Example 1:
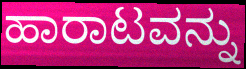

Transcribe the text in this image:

ಹಾರಾಟವನ್ನು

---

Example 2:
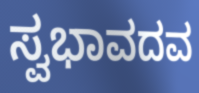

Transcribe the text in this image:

ಸ್ವಭಾವದವ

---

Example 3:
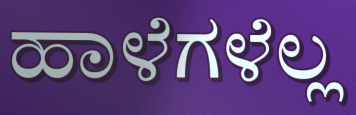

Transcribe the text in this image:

ಹಾಳೆಗಳೆಲ್ಲ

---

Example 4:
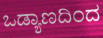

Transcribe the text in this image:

ಒಡ್ಯಾಣದಿಂದ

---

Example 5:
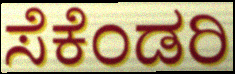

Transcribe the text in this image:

ಸೆಕೆಂಡರಿ